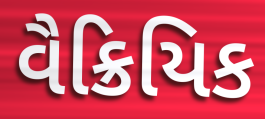
વૈક્રિયિક